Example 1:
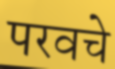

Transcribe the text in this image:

परवचे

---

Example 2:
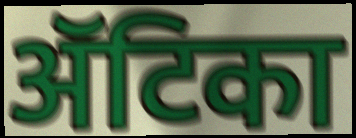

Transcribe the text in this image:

ॲटिका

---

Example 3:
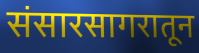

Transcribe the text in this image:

संसारसागरातून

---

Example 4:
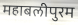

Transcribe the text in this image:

महाबलीपुरम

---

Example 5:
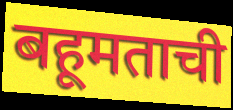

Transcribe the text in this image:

बहूमताची